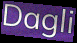
Dagli